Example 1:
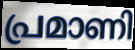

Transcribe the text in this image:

പ്രമാണി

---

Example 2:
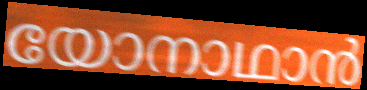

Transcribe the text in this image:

യോനാഥാൻ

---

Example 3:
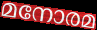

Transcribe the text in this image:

മനോരമ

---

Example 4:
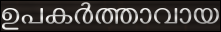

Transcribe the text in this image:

ഉപകർത്താവായ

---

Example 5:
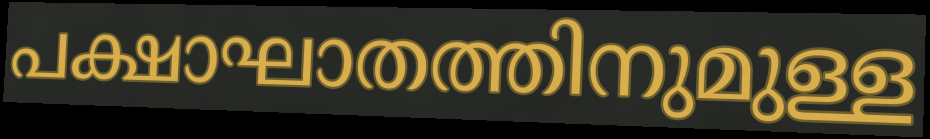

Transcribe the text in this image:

പക്ഷാഘാതത്തിനുമുള്ള